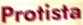
Protista